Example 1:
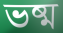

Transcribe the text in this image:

ভষ্ম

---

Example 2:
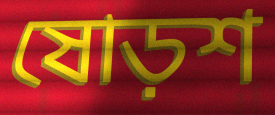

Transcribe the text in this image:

ষোড়শ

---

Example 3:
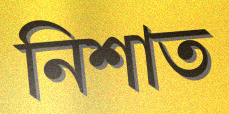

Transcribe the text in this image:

নিশাত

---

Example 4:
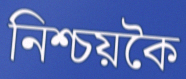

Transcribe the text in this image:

নিশ্চয়কৈ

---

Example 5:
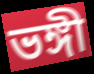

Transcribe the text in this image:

ভঙ্গী